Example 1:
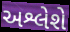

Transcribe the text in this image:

અશ્લેશે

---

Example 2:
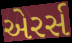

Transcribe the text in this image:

એરર્સ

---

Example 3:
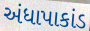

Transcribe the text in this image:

અંધાપાકાંડ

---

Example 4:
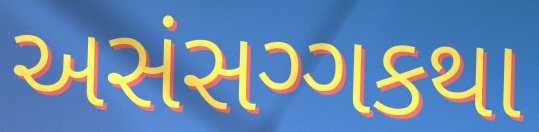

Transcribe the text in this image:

અસંસગ્ગકથા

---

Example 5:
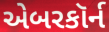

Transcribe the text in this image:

એબરકૉર્ન